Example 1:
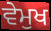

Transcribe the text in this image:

ਵੇਮੁਖ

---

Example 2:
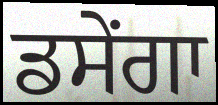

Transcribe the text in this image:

ਡਸੇਂਗਾ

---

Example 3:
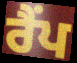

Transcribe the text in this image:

ਰੈਂਪ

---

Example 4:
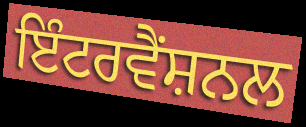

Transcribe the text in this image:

ਇੰਟਰਵੈਂਸ਼ਨਲ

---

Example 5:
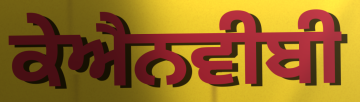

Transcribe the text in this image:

ਕੇਐਨਵੀਬੀ